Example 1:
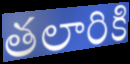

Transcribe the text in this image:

తలారికి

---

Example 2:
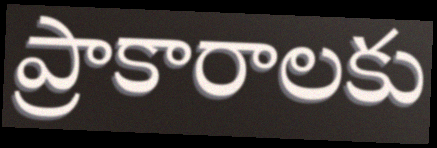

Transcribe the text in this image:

ప్రాకారాలకు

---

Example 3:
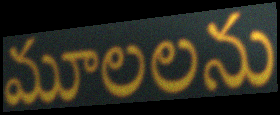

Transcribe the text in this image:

మూలలను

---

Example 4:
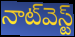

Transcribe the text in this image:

నాట్‌వెస్ట్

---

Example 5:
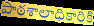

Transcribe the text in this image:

పాఠశాలాధికారికి